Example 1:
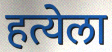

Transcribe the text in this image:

हत्येला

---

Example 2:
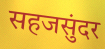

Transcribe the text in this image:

सहजसुंदर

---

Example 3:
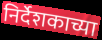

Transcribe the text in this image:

निर्देशकाच्या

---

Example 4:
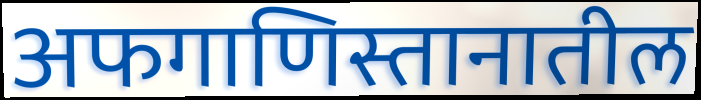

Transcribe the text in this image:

अफगाणिस्तानातील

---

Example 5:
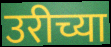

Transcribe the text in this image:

उरीच्या